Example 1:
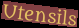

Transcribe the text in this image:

Utensils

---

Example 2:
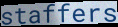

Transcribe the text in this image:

staffers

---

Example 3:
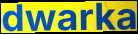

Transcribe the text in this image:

dwarka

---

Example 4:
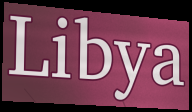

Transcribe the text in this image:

Libya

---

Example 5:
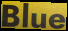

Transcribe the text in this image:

Blue